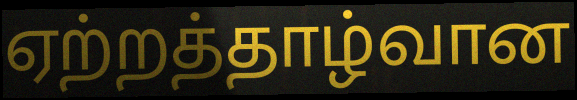
ஏற்றத்தாழ்வான